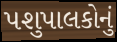
પશુપાલકોનું